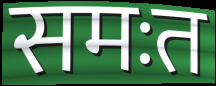
समःत